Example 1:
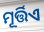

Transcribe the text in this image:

ମୂର୍ତ୍ତିଏ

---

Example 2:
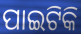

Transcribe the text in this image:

ପାଇଟିକି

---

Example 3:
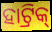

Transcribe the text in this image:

ହାଟ୍ରିକ୍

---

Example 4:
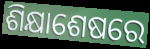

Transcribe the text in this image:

ଶିକ୍ଷାଶେଷରେ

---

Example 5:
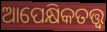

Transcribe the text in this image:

ଆପେକ୍ଷିକତତ୍ତ୍ୱ